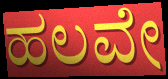
ಹಲವೇ